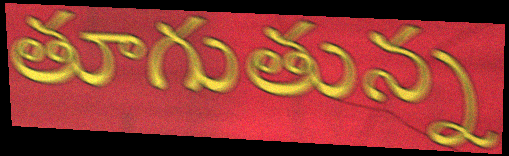
తూగుతున్న